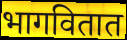
भागवितात